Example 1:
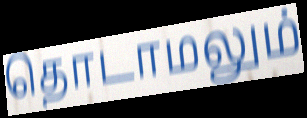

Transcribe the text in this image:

தொடாமலும்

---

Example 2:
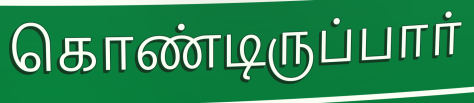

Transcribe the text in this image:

கொண்டிருப்பார்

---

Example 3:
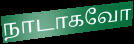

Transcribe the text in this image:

நாடாகவோ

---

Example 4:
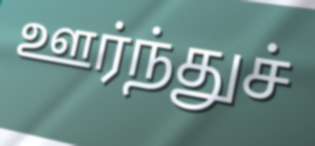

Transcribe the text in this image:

ஊர்ந்துச்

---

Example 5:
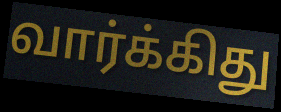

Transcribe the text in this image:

வார்க்கிது